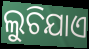
ଲୁଚିଯାଏ